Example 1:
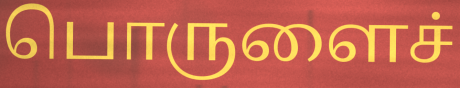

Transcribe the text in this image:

பொருளைச்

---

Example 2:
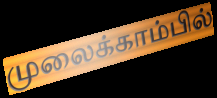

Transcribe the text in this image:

முலைக்காம்பில்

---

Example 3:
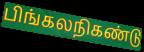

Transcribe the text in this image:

பிங்கலநிகண்டு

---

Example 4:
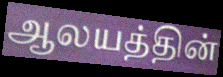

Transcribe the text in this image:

ஆலயத்தின்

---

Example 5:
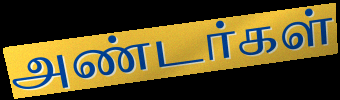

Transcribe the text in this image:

அண்டர்கள்